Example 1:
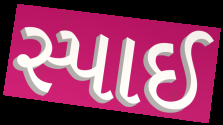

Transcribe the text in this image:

સ્પાઈ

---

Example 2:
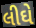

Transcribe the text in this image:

લીઘે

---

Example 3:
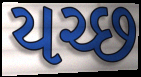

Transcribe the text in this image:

યચ્છ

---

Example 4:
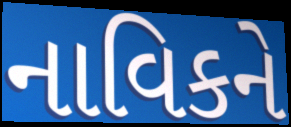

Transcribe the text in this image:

નાવિકને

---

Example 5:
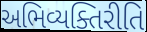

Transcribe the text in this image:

અભિવ્યક્તિરીતિ